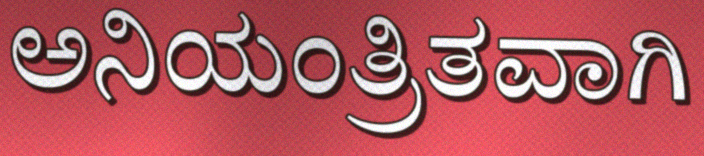
ಅನಿಯಂತ್ರಿತವಾಗಿ